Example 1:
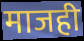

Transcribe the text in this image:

माजही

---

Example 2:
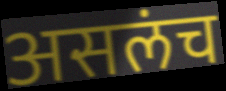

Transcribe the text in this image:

असलंच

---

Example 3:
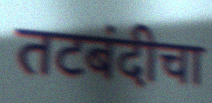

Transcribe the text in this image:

तटबंदीचा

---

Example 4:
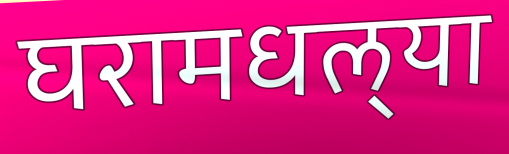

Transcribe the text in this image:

घरामधल्या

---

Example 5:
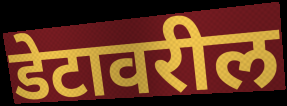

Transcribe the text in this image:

डेटावरील